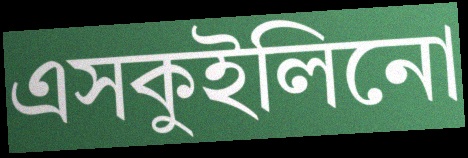
এসকুইলিনো